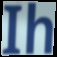
Ih